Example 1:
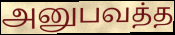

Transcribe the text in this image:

அனுபவத்த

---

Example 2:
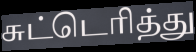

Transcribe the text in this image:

சுட்டெரித்து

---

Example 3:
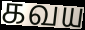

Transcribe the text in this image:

கவய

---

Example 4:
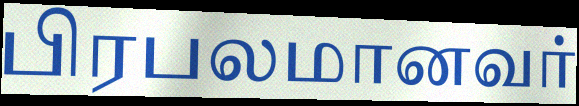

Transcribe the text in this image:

பிரபலமானவர்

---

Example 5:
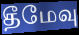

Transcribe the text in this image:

தீமேவு